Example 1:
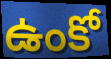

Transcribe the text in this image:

ఉంకో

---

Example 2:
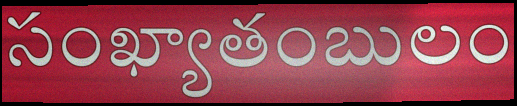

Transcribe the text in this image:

సంఖ్యాతంబులం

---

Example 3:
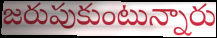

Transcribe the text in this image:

జరుపుకుంటున్నారు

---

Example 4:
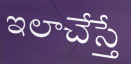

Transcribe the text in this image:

ఇలాచేస్తే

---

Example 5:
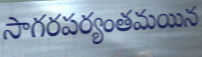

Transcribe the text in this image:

సాగరపర్యంతమయిన